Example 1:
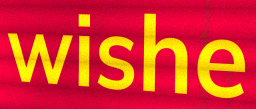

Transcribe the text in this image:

wishe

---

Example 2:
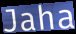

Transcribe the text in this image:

Jaha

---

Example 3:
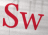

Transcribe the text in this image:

Sw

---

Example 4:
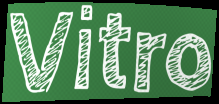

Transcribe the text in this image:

Vitro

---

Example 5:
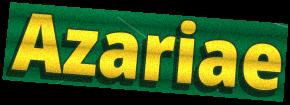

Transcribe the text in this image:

Azariae